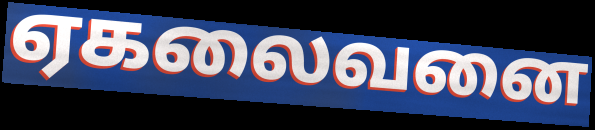
ஏகலைவனை